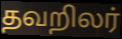
தவறிலர்